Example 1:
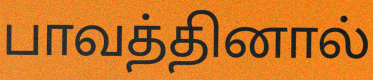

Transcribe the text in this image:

பாவத்தினால்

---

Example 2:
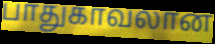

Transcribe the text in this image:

பாதுகாவலான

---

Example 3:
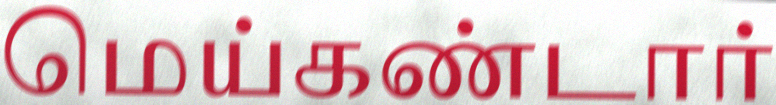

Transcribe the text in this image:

மெய்கண்டார்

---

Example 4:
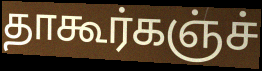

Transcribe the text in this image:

தாகூர்கஞ்ச்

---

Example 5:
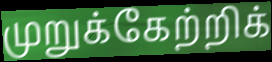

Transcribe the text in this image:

முறுக்கேற்றிக்